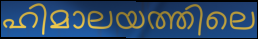
ഹിമാലയത്തിലെ